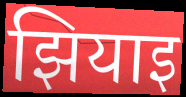
झियाइ